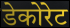
डेकोरेट